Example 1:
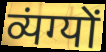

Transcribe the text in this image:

व्यंग्यों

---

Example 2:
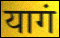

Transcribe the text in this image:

यागं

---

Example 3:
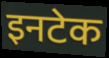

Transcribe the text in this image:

इनटेक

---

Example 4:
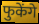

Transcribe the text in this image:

फुकेंगे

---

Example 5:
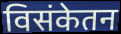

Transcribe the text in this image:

विसंकेतन